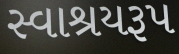
સ્વાશ્રયરૂપ